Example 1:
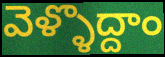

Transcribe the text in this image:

వెళ్ళొద్దాం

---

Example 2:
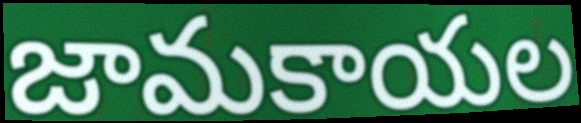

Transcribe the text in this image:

జామకాయల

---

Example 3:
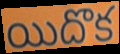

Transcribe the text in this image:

యిదొక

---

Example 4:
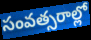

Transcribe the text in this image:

సంవత్సరాల్లో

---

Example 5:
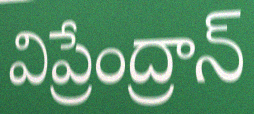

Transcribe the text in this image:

విప్రేంద్రాన్